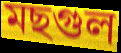
মছগুল